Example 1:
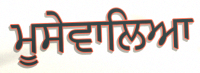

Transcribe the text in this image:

ਮੂਸੇਵਾਲਿਆ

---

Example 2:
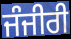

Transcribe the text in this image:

ਜੰਜੀਰੀ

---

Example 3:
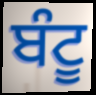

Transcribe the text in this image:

ਬੰਟੂ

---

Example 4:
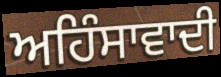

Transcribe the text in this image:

ਅਹਿੰਸਾਵਾਦੀ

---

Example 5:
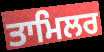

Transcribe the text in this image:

ਤਾਮਿਲਰ